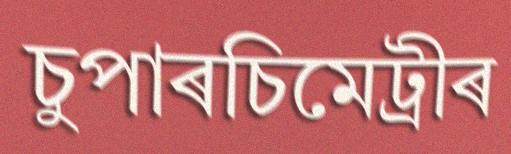
চুপাৰচিমেট্ৰীৰ